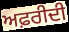
ਅਫ਼ਰੀਦੀ